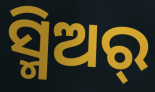
ସ୍ମିଅର୍